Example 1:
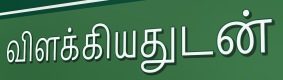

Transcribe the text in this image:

விளக்கியதுடன்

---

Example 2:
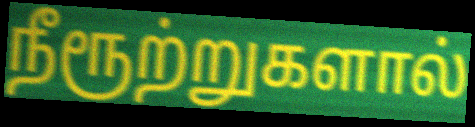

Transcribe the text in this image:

நீரூற்றுகளால்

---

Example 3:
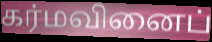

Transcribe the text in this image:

கர்மவினைப்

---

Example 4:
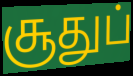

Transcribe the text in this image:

சூதுப்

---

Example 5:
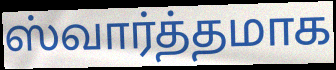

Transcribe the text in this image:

ஸ்வார்த்தமாக